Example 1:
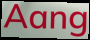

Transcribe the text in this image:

Aang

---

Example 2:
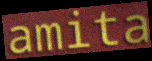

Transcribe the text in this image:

amita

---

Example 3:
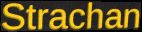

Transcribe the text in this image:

Strachan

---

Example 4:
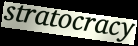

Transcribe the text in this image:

stratocracy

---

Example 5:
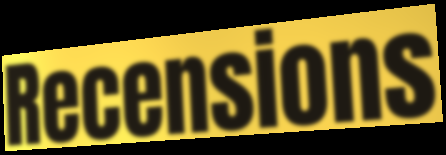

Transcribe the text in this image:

Recensions